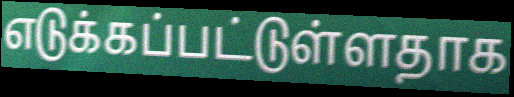
எடுக்கப்பட்டுள்ளதாக